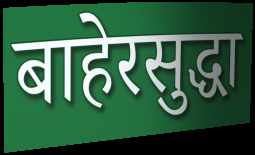
बाहेरसुद्धा